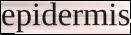
epidermis